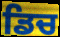
ਡਿਚ